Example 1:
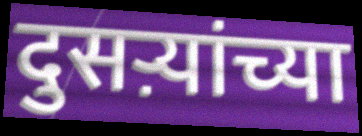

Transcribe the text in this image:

दुसऱ्‍यांच्या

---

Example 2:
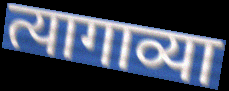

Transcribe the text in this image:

त्यागाव्या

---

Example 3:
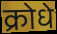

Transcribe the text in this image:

क्रोधे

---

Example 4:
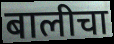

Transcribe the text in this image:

बालीचा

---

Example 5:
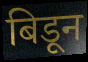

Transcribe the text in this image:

बिडून